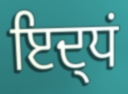
ਇਦ੍ਧਂ